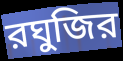
রঘুজির